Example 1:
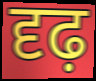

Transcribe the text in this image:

दृढ़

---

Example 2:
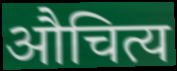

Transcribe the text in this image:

औचित्य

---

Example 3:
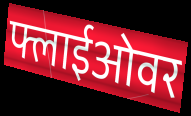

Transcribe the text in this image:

फ्लाईओवर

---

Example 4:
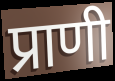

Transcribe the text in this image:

प्राणी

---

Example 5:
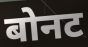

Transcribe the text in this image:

बोनट